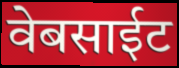
वेबसाईट